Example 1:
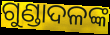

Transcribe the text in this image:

ଗୁଣ୍ଡାଦଳଙ୍କ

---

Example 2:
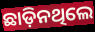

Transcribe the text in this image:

ଛାଡ଼ିନଥିଲେ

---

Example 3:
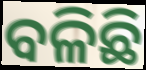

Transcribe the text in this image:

ବଳିଛି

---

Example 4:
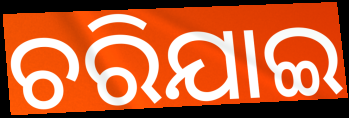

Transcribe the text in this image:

ଚରିଯାଇ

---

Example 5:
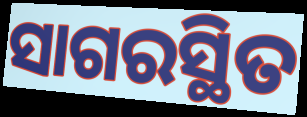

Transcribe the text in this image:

ସାଗରସ୍ଥିତ